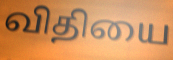
விதியை